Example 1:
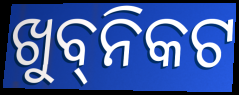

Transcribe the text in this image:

ଖୁବ୍‌ନିକଟ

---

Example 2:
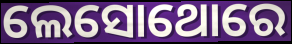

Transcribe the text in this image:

ଲେସୋଥୋରେ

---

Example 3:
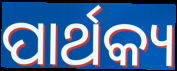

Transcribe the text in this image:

ପାର୍ଥକ୍ୟ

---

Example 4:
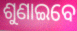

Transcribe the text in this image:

ଶୁଣାଇବେ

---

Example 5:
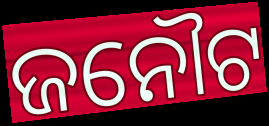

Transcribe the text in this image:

ଜନୌଟ